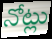
నోట్లు